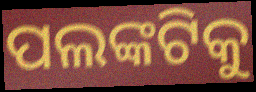
ପଲଙ୍କଟିକୁ